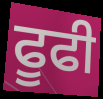
ਫੂਫੀ